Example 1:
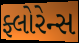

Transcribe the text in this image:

ફ્લોરેન્સ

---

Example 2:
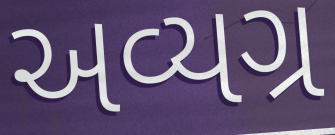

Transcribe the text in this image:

અવ્યગ્ર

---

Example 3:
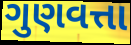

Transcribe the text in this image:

ગુણવત્તા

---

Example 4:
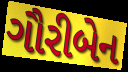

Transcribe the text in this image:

ગૌરીબેન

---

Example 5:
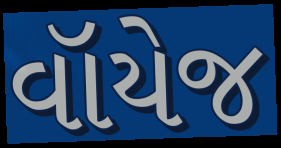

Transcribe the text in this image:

વૉયેજ